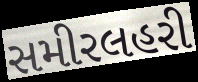
સમીરલહરી